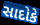
સાદોકે